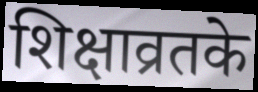
शिक्षाव्रतके